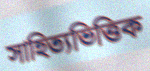
সাহিত্যভিত্তিক